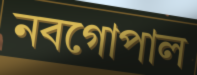
নবগোপাল